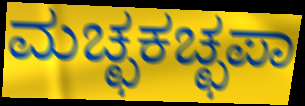
ಮಚ್ಛಕಚ್ಛಪಾ